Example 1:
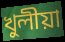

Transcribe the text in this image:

খুলীয়া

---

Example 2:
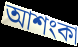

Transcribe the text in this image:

আশংকা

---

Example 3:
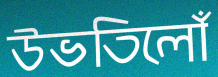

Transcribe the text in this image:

উভতিলোঁ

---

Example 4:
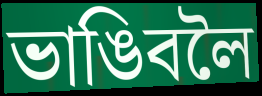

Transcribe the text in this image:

ভাঙিবলৈ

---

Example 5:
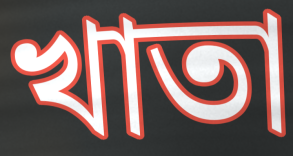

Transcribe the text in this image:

খাতা